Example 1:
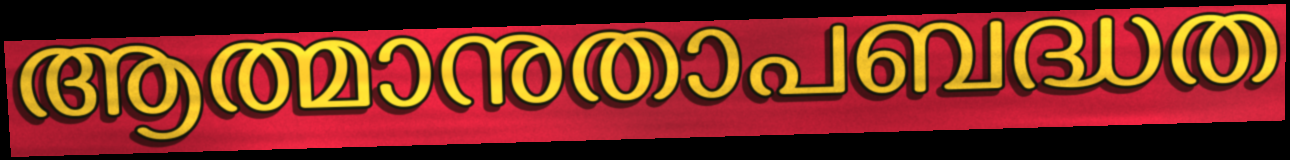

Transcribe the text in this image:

ആത്മാനുതാപബദ്ധത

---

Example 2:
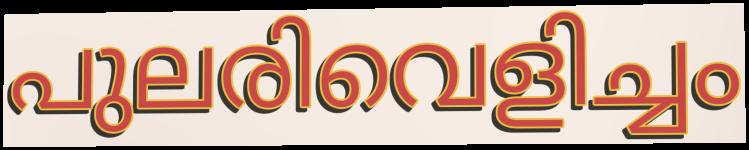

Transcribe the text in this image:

പുലരിവെളിച്ചം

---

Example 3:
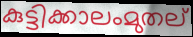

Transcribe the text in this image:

കുട്ടിക്കാലംമുതല്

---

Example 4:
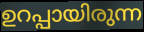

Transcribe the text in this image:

ഉറപ്പായിരുന്ന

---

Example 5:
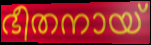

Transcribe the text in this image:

ഭീതനായ്